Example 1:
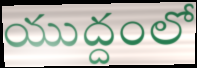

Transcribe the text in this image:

యుద్దంలో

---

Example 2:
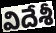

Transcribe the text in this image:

విదేశీ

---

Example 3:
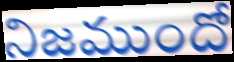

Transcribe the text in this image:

నిజముందో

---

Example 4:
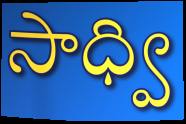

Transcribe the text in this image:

సాధ్వి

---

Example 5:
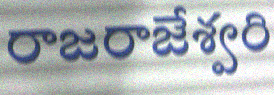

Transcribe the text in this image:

రాజరాజేశ్వరి